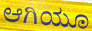
ಆಗಿಯೂ